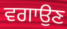
ਵਗਾਉਣ